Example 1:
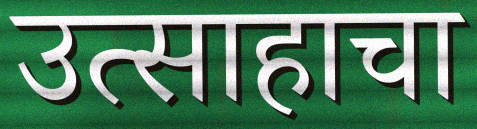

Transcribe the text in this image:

उत्साहाचा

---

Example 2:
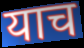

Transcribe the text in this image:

याच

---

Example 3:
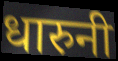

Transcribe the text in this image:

धारुनी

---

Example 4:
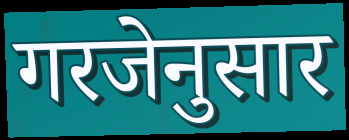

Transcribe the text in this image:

गरजेनुसार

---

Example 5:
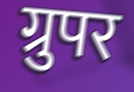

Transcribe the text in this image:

ग्रुपर